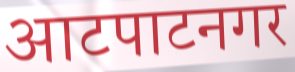
आटपाटनगर